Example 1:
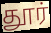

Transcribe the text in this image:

தூர்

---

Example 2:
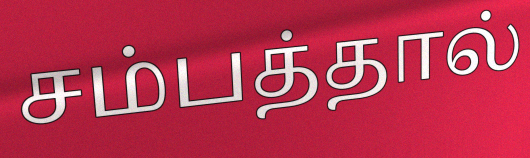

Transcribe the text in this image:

சம்பத்தால்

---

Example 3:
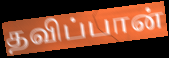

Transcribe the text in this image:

தவிப்பான்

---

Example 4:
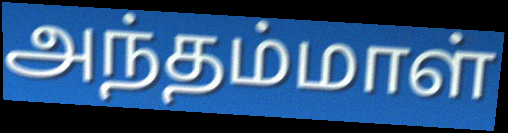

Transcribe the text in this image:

அந்தம்மாள்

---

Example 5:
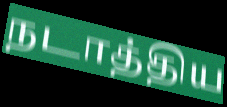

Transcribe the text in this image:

நடாத்திய